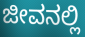
ಜೀವನಲ್ಲಿ